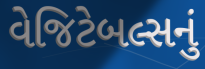
વેજિટેબલ્સનું